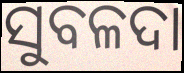
ସୁବଳଦା